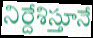
నిర్దేశిస్తూనే